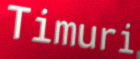
Timuri